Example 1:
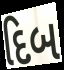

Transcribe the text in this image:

દિબ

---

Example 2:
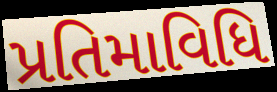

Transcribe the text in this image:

પ્રતિમાવિધિ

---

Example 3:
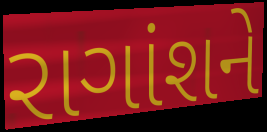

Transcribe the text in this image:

રાગાંશને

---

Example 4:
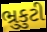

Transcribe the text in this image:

ભ્રુકુટી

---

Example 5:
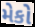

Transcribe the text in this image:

મેકો